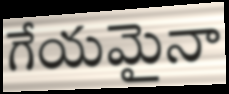
గేయమైనా